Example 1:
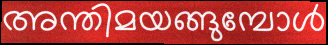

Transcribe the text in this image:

അന്തിമയങ്ങുമ്പോൾ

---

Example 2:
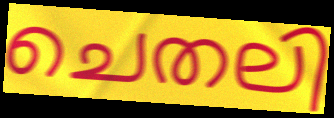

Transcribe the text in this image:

ചെതലി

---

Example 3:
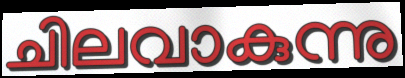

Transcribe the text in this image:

ചിലവാകുന്നു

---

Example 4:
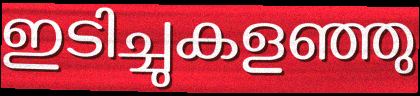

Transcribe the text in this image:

ഇടിച്ചുകളഞ്ഞു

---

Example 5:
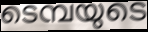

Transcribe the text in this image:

ടെമ്പയുടെ